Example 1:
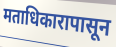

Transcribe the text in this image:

मताधिकारापासून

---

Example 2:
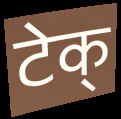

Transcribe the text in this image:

टेक्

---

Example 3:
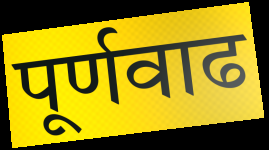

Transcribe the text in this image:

पूर्णवाढ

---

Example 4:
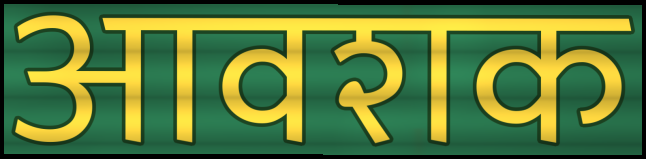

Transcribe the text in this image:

आवशक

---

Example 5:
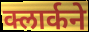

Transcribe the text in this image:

क्लार्कने